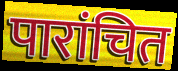
पारांचित